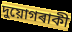
দুয়োগৰাকী